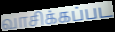
வாசிக்கப்பட